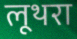
लूथरा